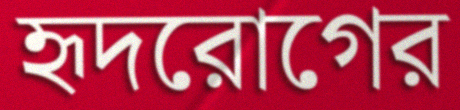
হৃদরোগের